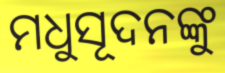
ମଧୁସୂଦନଙ୍କୁ